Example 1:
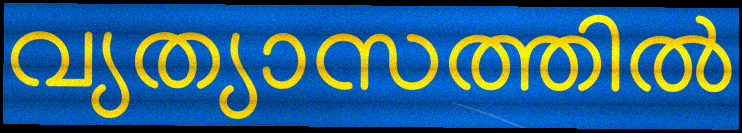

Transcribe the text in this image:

വ്യത്യാസത്തിൽ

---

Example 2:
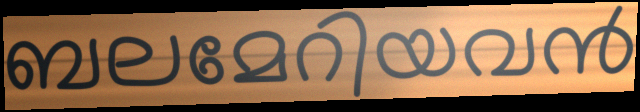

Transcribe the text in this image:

ബലമേറിയവൻ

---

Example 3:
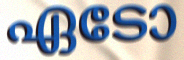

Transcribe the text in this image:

ഏടോ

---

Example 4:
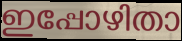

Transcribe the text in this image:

ഇപ്പോഴിതാ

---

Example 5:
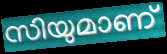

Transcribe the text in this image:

സിയുമാണ്